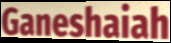
Ganeshaiah